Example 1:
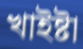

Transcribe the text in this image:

খাইষ্টা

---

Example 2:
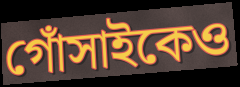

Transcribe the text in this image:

গোঁসাইকেও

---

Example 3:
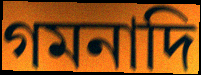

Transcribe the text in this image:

গমনাদি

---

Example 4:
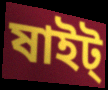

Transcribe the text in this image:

ষাইট্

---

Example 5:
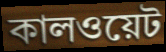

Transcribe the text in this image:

কালওয়েট